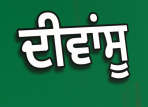
ਦੀਵਾਂਸੂ